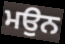
ਮਉਨ